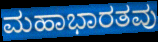
ಮಹಾಭಾರತವು